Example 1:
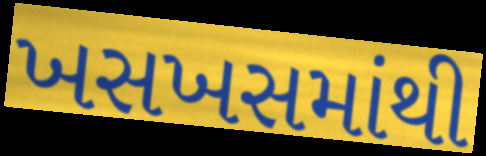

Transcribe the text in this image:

ખસખસમાંથી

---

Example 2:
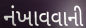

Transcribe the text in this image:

નંખાવવાની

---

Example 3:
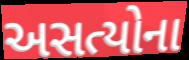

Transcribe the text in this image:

અસત્યોના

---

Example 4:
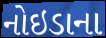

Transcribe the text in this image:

નોઇડાના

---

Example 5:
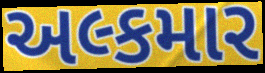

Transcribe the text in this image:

અલ્કમાર